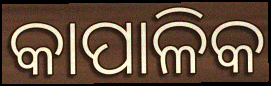
କାପାଳିକ